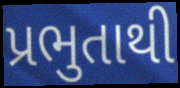
પ્રભુતાથી